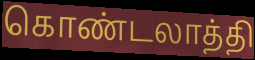
கொண்டலாத்தி